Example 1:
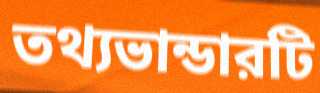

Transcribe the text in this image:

তথ্যভান্ডারটি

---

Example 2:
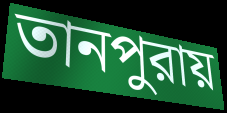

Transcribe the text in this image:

তানপুরায়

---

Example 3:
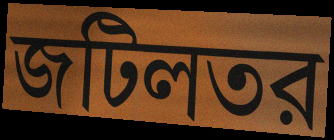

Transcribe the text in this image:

জটিলতর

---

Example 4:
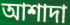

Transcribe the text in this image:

আশাদা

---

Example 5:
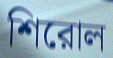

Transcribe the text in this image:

শিরোল